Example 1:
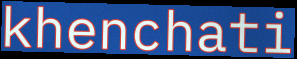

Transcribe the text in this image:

khenchati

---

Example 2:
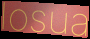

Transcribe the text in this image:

Iosua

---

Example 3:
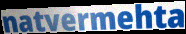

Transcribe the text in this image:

natvermehta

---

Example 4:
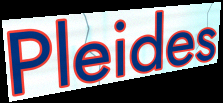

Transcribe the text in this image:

Pleides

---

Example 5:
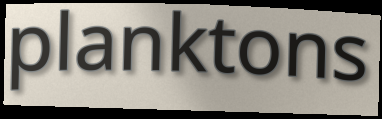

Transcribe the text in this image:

planktons